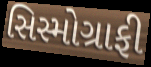
સિસ્મોગ્રાફી